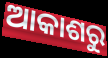
ଆକାଶରୁ